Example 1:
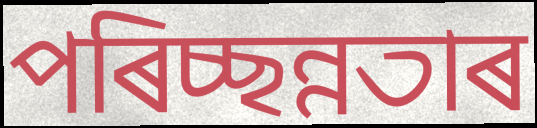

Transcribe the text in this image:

পৰিচ্ছন্নতাৰ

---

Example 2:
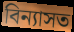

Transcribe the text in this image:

বিন্যাসত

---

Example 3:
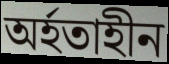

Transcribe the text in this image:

অৰ্হতাহীন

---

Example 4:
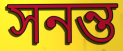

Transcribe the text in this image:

সনন্ত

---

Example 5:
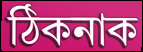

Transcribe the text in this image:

ঠিকনাক